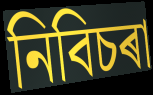
নিবিচৰা